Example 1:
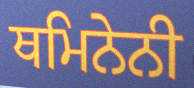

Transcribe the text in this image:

ਥਮਿਨੇਨੀ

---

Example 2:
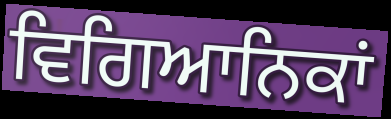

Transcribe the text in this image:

ਵਿਗਿਆਨਿਕਾਂ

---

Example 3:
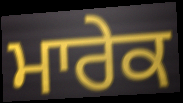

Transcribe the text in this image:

ਮਾਰੇਕ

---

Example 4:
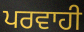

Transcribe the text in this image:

ਪਰਵਾਹੀ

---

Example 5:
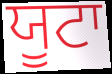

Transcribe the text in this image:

ਯੂਟਾ